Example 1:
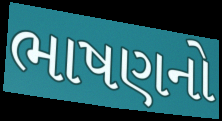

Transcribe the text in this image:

ભાષણનો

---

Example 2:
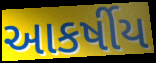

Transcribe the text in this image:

આકર્ષીય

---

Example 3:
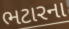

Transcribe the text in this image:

ભટારના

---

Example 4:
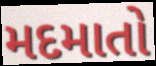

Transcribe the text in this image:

મદમાતો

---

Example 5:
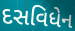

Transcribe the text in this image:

દસવિધેન